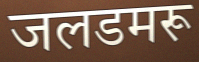
जलडमरू